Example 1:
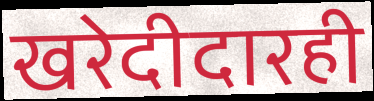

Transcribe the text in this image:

खरेदीदारही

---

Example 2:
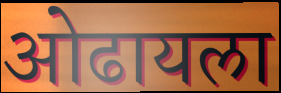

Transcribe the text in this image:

ओढायला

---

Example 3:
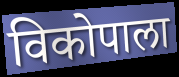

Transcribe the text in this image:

विकोपाला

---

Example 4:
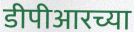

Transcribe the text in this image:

डीपीआरच्या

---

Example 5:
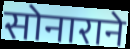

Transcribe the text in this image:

सोनाराने